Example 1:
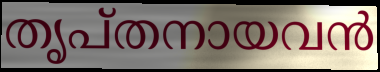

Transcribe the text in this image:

തൃപ്തനായവൻ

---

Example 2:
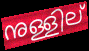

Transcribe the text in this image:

നുള്ളില്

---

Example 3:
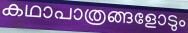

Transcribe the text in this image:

കഥാപാത്രങ്ങളോടും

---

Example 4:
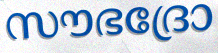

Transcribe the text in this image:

സൗഭദ്രോ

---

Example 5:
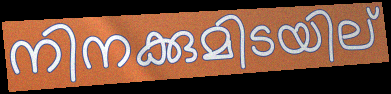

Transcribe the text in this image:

നിനക്കുമിടയില്